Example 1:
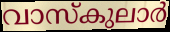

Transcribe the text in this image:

വാസ്കുലാർ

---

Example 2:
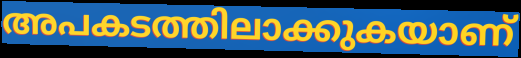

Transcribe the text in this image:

അപകടത്തിലാക്കുകയാണ്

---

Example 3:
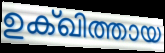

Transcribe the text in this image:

ഉക്ഖിത്തായ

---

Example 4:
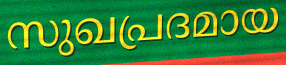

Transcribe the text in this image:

സുഖപ്രദമായ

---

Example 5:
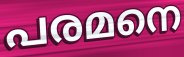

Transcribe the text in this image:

പരമനെ